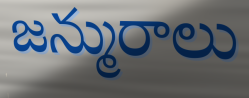
జన్మురాలు